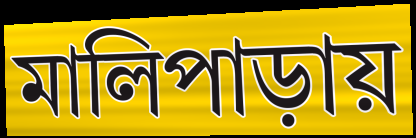
মালিপাড়ায়